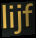
lijf